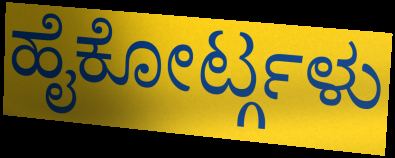
ಹೈಕೋರ್ಟ್ಗಳು